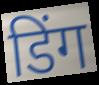
डिंग